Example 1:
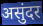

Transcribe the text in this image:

असुंदर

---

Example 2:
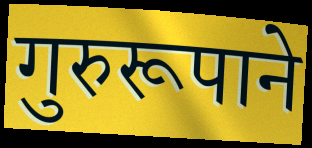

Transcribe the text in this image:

गुरुरूपाने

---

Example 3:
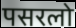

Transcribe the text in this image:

पसरलो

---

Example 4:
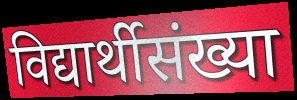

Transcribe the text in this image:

विद्यार्थीसंख्या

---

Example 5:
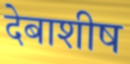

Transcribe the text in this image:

देबाशीष